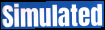
Simulated